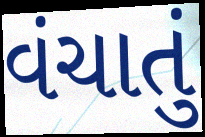
વંચાતું